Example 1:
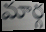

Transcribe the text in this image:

మార్గ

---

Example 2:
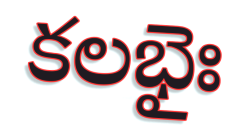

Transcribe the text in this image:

కలభైః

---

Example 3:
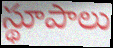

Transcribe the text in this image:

స్థూపాలు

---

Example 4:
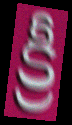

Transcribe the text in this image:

క్రీ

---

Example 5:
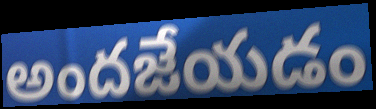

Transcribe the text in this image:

అందజేయడం